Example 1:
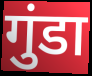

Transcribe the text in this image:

गुंडा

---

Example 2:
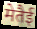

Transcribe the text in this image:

मेतैई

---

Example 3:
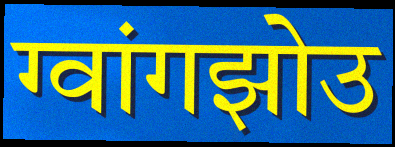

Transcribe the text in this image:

ग्वांगझोउ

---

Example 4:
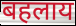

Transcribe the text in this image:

बहलाय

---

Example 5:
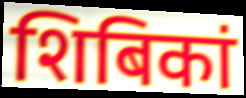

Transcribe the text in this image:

शिबिकां